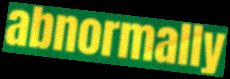
abnormally